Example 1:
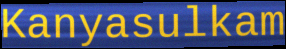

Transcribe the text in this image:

Kanyasulkam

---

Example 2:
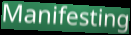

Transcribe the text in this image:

Manifesting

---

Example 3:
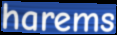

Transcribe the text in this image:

harems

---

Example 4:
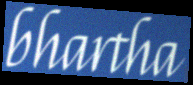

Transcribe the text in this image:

bhartha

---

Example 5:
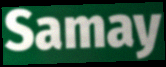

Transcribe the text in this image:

Samay